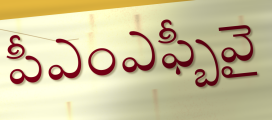
పీఎంఎఫ్బీవై